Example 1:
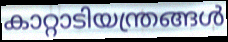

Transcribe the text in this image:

കാറ്റാടിയന്ത്രങ്ങൾ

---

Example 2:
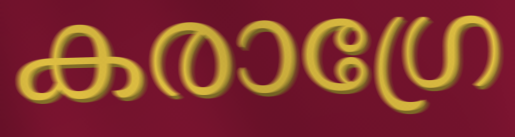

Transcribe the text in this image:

കരാഗ്രേ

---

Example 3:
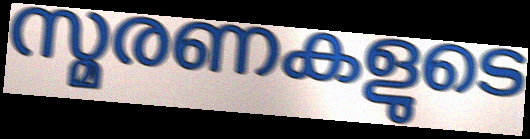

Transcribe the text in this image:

സ്മരണകളുടെ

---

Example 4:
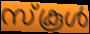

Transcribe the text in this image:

സ്കൂൾ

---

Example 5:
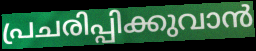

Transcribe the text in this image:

പ്രചരിപ്പിക്കുവാൻ